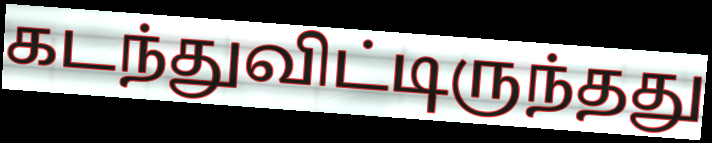
கடந்துவிட்டிருந்தது